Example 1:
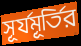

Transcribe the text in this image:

সূর্যমূর্তির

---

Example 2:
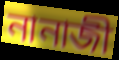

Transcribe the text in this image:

নানাজী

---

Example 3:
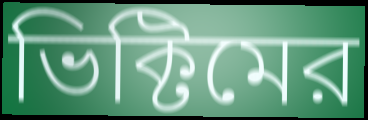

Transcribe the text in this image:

ভিক্টিমের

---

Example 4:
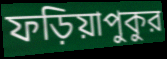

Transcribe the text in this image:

ফড়িয়াপুকুর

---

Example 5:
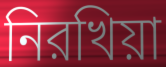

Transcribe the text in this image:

নিরখিয়া